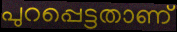
പുറപ്പെട്ടതാണ്